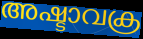
അഷ്ടാവക്ര